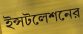
ইন্সটলেশনের